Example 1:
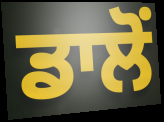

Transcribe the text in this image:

ਡਾਲੋਂ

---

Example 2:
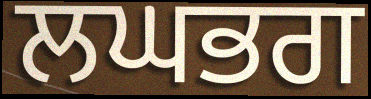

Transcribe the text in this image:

ਲਘਭਗ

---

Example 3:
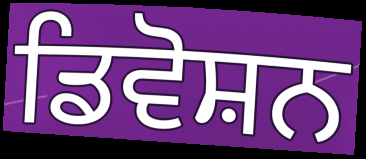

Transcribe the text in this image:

ਡਿਵੋਸ਼ਨ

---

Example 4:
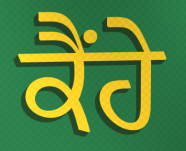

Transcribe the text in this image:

ਕੈਂਹੇ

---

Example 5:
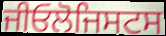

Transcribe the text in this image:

ਜੀਓਲੋਜਿਸਟਸ